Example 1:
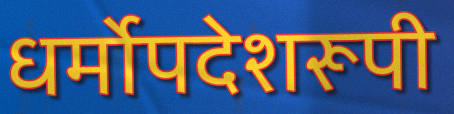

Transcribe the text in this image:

धर्मोपदेशरूपी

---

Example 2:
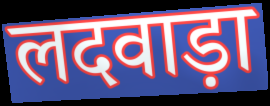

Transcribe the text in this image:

लदवाड़ा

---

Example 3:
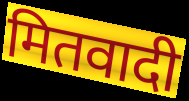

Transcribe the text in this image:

मितवादी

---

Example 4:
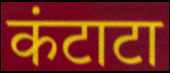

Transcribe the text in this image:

कंटाटा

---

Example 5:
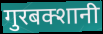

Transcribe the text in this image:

गुरबक्शानी